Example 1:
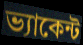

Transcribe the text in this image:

ভ্যাকেন্ট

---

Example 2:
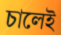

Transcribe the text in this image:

চালেই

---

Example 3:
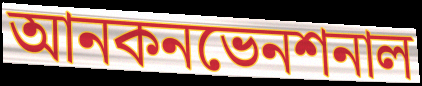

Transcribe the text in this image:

আনকনভেনশনাল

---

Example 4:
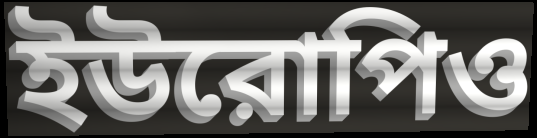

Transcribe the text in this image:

ইউরোপিও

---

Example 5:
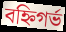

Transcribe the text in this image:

বহ্নিগর্ভ